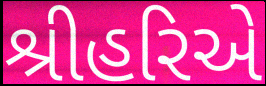
શ્રીહરિએ